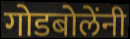
गोडबोलेंनी